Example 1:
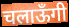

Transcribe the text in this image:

चलाऊँगी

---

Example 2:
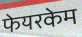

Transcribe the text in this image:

फेयरकेम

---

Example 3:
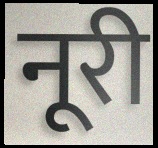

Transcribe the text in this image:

नूरी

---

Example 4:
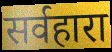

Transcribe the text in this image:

सर्वहारा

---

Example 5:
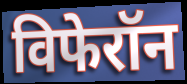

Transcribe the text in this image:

विफेरॉन